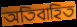
অতিবাহিত